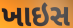
ખાઇસ